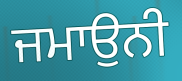
ਜਮਾਉਨੀ